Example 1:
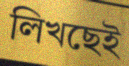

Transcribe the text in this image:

লিখছেই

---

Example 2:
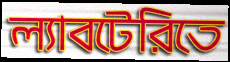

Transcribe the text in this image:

ল্যাবটেরিতে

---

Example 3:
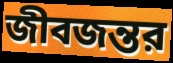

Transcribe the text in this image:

জীবজন্তর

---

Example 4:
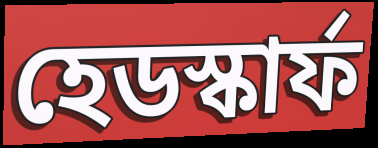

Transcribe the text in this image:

হেডস্কার্ফ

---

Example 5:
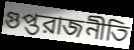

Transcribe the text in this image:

গুপ্তরাজনীতি